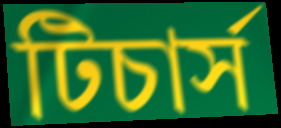
টিচার্স